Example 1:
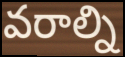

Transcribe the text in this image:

వరాల్ని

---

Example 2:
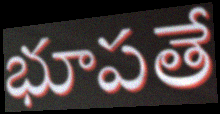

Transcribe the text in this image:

భూపతే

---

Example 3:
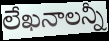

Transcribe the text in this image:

లేఖనాలన్నీ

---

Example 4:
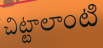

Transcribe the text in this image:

చిట్టాలాంటి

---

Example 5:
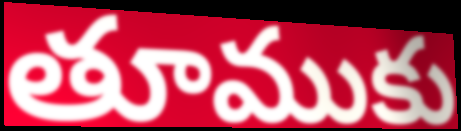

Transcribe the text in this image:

తూముకు